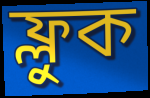
ফ্লুক